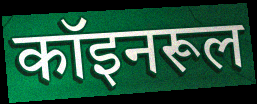
कॉइनरूल